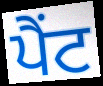
ਪੈਂਟ